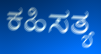
ಕಹಿಸತ್ಯ